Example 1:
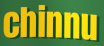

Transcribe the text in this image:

chinnu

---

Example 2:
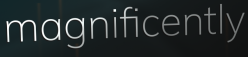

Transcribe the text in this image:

magnificently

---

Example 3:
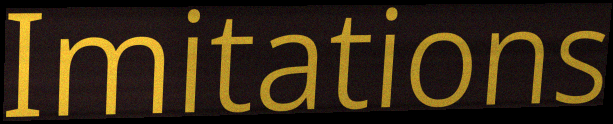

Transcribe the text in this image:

Imitations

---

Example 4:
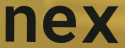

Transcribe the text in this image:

nex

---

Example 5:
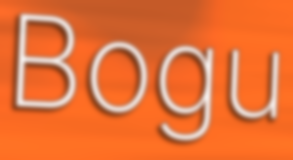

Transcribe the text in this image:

Bogu